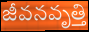
జీవనవృత్తి